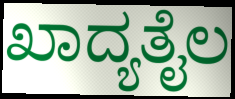
ಖಾದ್ಯತೈಲ